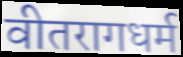
वीतरागधर्म